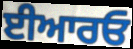
ਈਆਰਓ